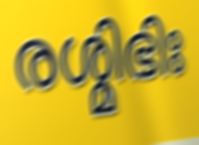
രശ്മിഭിഃ